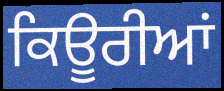
ਕਿਊਰੀਆਂ